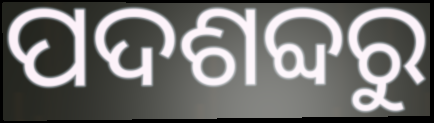
ପଦଶବ୍ଦରୁ